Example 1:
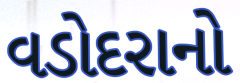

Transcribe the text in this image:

વડોદરાનો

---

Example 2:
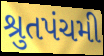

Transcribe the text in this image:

શ્રુતપંચમી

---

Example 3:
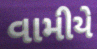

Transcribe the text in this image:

વામીયે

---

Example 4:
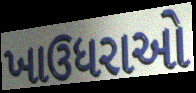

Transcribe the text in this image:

ખાઉધરાઓ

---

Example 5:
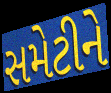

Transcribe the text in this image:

સમેટીને